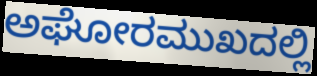
ಅಘೋರಮುಖದಲ್ಲಿ